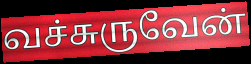
வச்சுருவேன்